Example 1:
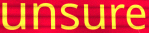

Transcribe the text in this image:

unsure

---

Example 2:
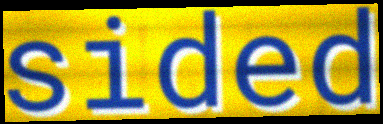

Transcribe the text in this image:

sided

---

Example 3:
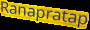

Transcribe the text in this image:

Ranapratap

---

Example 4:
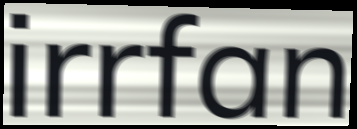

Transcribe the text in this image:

irrfan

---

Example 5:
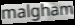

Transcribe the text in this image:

malgham